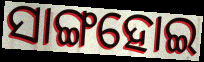
ସାଙ୍ଗହୋଇ